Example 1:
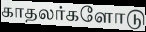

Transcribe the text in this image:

காதலர்களோடு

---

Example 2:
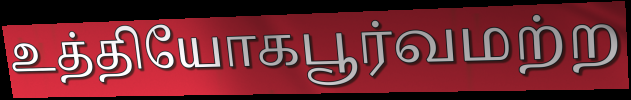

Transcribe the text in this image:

உத்தியோகபூர்வமற்ற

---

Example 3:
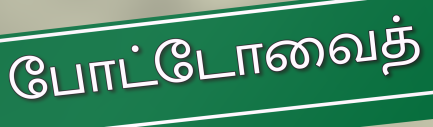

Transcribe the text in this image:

போட்டோவைத்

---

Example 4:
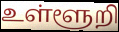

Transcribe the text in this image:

உள்ளூறி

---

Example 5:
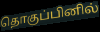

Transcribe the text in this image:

தொகுப்பினில்